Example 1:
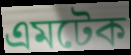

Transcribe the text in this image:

এমটেক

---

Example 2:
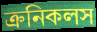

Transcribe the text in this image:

ক্রনিকলস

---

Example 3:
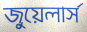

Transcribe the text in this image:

জুয়েলার্স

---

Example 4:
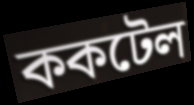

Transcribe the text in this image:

ককটেল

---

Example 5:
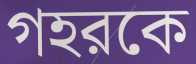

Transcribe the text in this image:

গহরকে